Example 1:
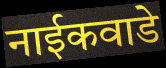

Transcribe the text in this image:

नाईकवाडे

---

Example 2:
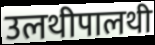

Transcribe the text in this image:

उलथीपालथी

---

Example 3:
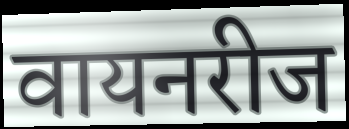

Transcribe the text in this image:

वायनरीज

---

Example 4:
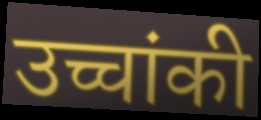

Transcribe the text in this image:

उच्चांकी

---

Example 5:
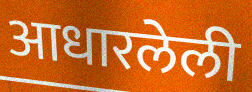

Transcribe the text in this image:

आधारलेली